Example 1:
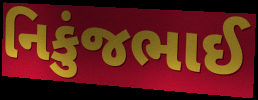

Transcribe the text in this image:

નિકુંજભાઈ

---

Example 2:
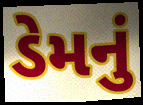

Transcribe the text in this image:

ડેમનું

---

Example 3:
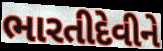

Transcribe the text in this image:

ભારતીદેવીને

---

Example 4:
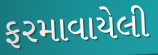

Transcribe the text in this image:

ફરમાવાયેલી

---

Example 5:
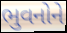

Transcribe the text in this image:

ભુવનોને